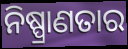
ନିଷ୍ପ୍ରାଣତାର